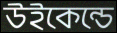
উইকেন্ডে